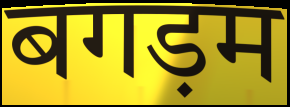
बगड़म